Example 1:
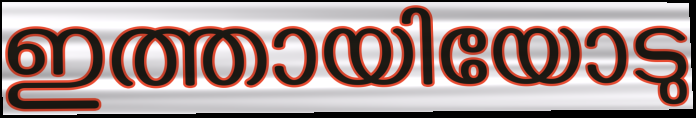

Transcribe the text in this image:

ഇത്തായിയോടു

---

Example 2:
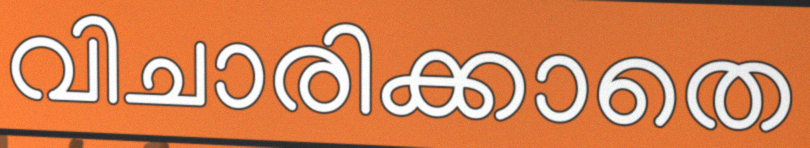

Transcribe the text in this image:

വിചാരിക്കാതെ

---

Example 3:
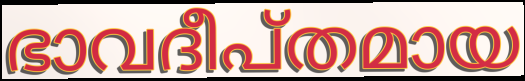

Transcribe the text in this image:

ഭാവദീപ്തമായ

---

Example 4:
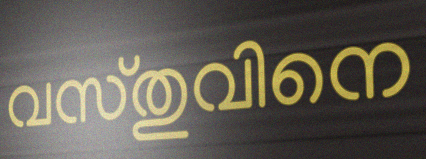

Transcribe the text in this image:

വസ്തുവിനെ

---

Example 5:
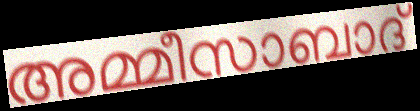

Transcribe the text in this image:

അമ്മീസാബാദ്